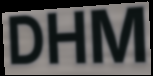
DHM